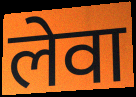
लेवा